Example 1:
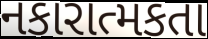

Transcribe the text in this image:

નકારાત્મકતા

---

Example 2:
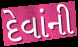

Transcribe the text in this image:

દેવાંની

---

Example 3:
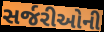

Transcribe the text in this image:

સર્જરીઓની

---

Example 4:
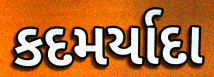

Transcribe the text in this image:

કદમર્યાદા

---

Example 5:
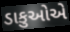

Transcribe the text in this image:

ડાકુઓએ